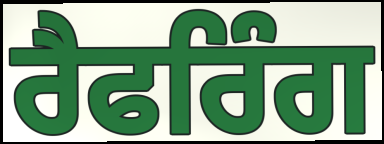
ਰੈਫਰਿੰਗ